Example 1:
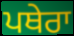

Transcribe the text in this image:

ਪਥੇਰਾ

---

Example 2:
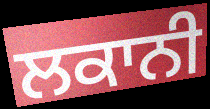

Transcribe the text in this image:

ਲਕਾਨੀ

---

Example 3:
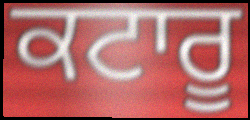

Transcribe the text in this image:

ਕਟਾਰੂ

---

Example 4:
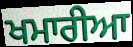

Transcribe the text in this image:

ਖਮਾਰੀਆ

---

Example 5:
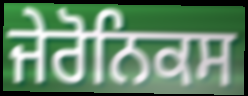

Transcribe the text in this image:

ਜੇਰੋਨਿਕਸ